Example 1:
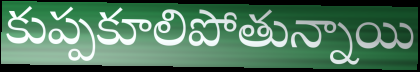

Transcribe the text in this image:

కుప్పకూలిపోతున్నాయి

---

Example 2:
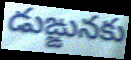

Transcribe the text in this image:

డుఙ్ఙునకు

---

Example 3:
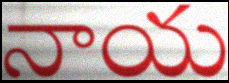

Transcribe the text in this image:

నాయ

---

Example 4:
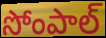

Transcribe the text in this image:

సోంపాల్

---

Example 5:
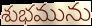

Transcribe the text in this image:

శుభమును